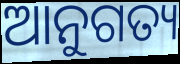
ଆନୁଗତ୍ୟ